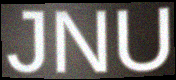
JNU